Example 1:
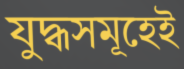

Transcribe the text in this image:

যুদ্ধসমূহেই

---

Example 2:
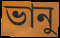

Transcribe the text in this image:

ভানু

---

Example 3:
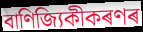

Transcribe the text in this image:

বাণিজ্যিকীকৰণৰ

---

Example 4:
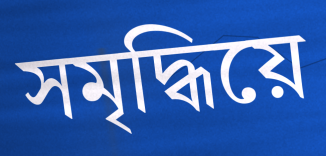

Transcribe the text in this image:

সমৃদ্ধিয়ে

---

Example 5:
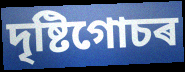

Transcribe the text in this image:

দৃষ্টিগোচৰ